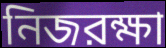
নিজরক্ষা